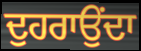
ਦੁਹਰਾਉਂਦਾ